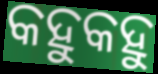
କହୁକହୁ